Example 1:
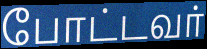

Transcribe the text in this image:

போட்டவர்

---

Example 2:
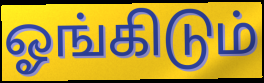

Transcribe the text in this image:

ஓங்கிடும்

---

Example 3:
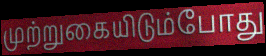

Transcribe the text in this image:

முற்றுகையிடும்போது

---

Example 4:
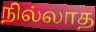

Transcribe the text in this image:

நில்லாத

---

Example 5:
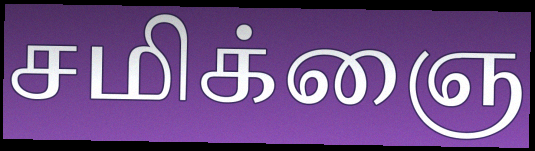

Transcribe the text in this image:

சமிக்ஞை